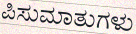
ಪಿಸುಮಾತುಗಳು